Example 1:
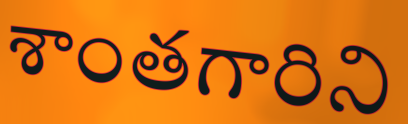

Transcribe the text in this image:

శాంతగారిని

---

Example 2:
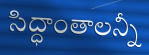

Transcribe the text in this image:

సిద్ధాంతాలన్నీ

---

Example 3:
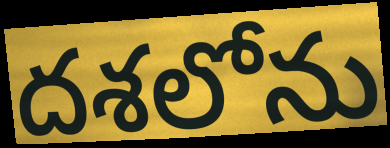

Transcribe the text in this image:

దశలోను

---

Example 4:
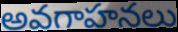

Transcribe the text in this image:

అవగాహనలు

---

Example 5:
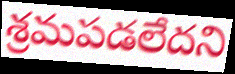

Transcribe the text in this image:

శ్రమపడలేదని